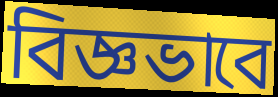
বিজ্ঞভাবে